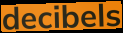
decibels